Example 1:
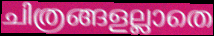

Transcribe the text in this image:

ചിത്രങ്ങളല്ലാതെ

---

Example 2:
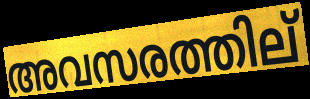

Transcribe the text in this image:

അവസരത്തില്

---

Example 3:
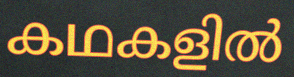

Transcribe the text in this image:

കഥകളിൽ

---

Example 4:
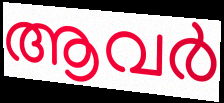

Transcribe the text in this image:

ആവർ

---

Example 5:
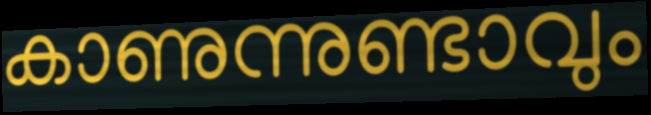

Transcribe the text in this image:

കാണുന്നുണ്ടാവും